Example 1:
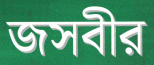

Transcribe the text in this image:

জসবীর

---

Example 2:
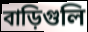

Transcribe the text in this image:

বাড়িগুলি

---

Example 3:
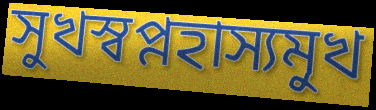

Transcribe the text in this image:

সুখস্বপ্নহাস্যমুখ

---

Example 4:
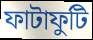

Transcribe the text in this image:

ফাটাফুটি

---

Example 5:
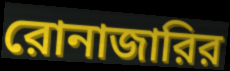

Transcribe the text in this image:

রোনাজারির